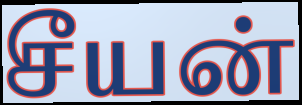
சீயன்